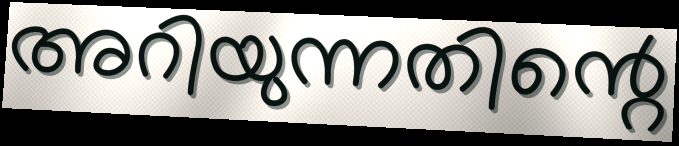
അറിയുന്നതിന്റെ